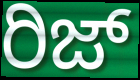
ರಿಜ್